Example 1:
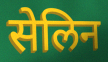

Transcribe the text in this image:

सेलिन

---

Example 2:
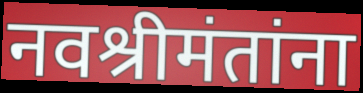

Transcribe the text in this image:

नवश्रीमंतांना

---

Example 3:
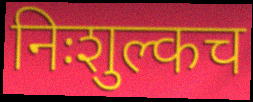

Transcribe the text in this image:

निःशुल्कच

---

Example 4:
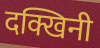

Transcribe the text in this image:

दक्खिनी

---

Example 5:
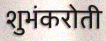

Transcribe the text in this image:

शुभंकरोती